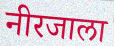
नीरजाला